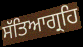
ਸੱਤਿਆਗ੍ਰਹਿ